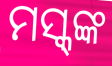
ମସ୍କ୍‌ଙ୍କ